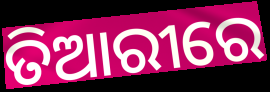
ତିଆରୀରେ